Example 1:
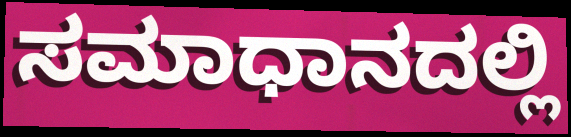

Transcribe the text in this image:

ಸಮಾಧಾನದಲ್ಲಿ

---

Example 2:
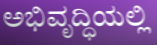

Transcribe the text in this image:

ಅಭಿವೃದ್ಧಿಯಲ್ಲಿ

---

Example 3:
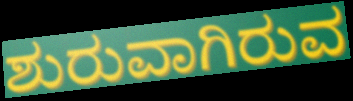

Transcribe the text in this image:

ಶುರುವಾಗಿರುವ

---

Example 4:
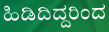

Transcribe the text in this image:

ಹಿಡಿದಿದ್ದರಿಂದ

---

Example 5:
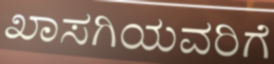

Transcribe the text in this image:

ಖಾಸಗಿಯವರಿಗೆ